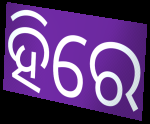
ହିରେ